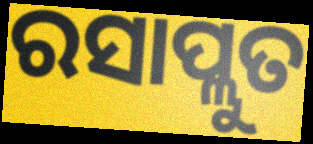
ରସାପ୍ଲୁତ